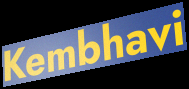
Kembhavi